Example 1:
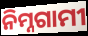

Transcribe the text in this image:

ନିମ୍ନଗାମୀ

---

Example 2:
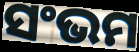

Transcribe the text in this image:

ସଂଭମ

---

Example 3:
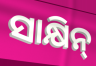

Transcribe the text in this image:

ସାକ୍ଷିନ୍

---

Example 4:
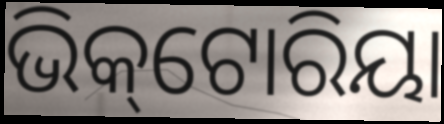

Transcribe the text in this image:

ଭିକ୍‌ଟୋରିୟା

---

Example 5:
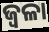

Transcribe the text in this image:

ଜ୍ୱଳା